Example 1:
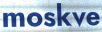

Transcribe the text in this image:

moskve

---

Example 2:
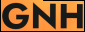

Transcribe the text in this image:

GNH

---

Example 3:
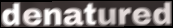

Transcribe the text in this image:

denatured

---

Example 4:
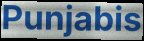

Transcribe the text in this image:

Punjabis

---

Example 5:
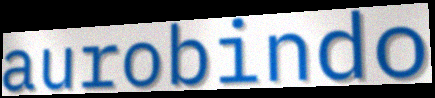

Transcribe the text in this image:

aurobindo